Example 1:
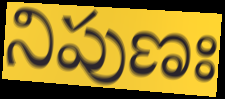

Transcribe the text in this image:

నిపుణః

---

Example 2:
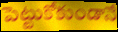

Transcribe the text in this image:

పెట్టుకోకుండానే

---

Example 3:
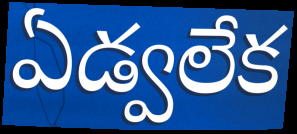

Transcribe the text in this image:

ఏడ్వలేక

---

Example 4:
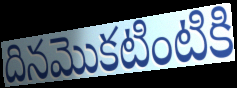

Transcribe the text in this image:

దినమొకటింటికి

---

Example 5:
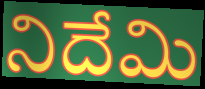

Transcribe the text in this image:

నిదేమి